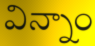
విన్నాం